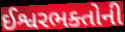
ઈશ્વરભક્તોની